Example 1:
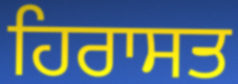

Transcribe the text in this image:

ਹਿਰਾਸਤ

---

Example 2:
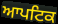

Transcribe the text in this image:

ਆਪਟਿਕ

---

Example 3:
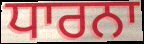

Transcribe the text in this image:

ਧਾਰਨਾ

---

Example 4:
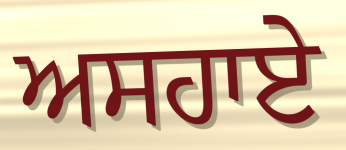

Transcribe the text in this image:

ਅਸਹਾਏ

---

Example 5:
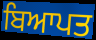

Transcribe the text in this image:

ਬਿਆਪਤ